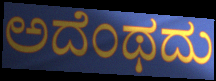
ಅದೆಂಥದು